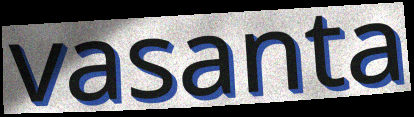
vasanta